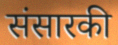
संसारकी